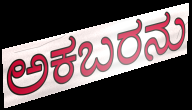
ಅಕಬರನು